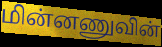
மின்னணுவின்